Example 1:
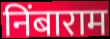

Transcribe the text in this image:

निंबाराम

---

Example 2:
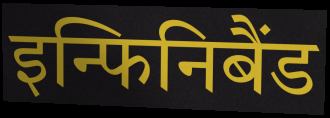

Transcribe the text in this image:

इन्फिनिबैंड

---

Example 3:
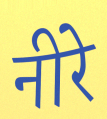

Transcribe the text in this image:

नीरे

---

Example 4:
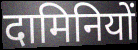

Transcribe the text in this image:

दामिनियों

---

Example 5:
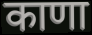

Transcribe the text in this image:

काणा